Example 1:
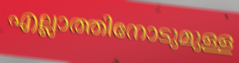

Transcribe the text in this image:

എല്ലാത്തിനോടുമുള്ള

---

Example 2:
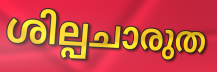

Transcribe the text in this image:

ശില്പചാരുത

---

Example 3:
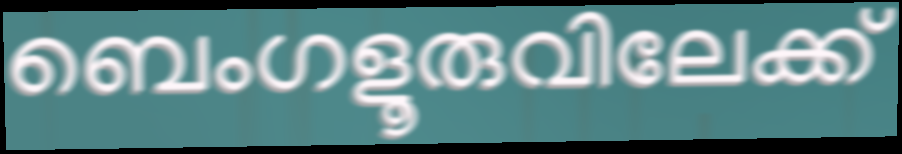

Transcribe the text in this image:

ബെംഗളൂരുവിലേക്ക്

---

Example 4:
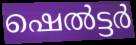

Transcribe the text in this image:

ഷെൽട്ടർ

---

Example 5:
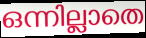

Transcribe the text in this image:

ഒന്നില്ലാതെ